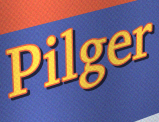
Pilger